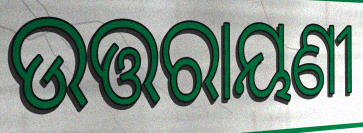
ଉତ୍ତରାୟଣୀ